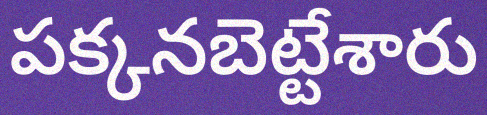
పక్కనబెట్టేశారు